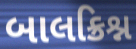
બાલક્રિશ્ન